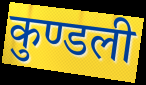
कुण्डली